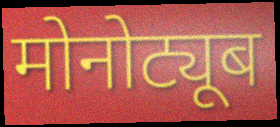
मोनोट्यूब